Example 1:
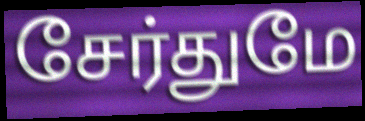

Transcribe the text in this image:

சேர்துமே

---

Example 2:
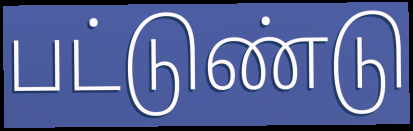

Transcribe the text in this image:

பட்டுண்டு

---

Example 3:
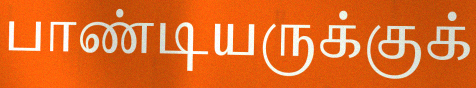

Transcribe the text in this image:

பாண்டியருக்குக்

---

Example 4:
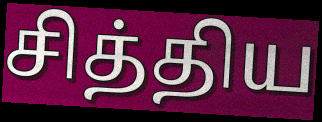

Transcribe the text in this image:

சித்திய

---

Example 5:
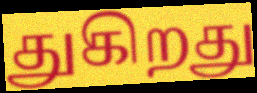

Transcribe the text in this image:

துகிறது